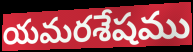
యమరశేషము